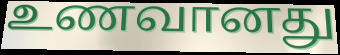
உணவானது